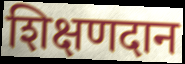
शिक्षणदान